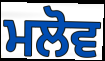
ਮਲੋਵ